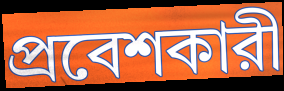
প্রবেশকারী